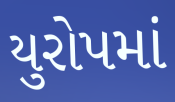
યુરોપમાં